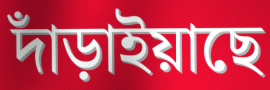
দাঁড়াইয়াছে